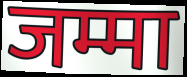
जम्मा